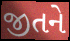
જીતને